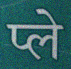
प्ले